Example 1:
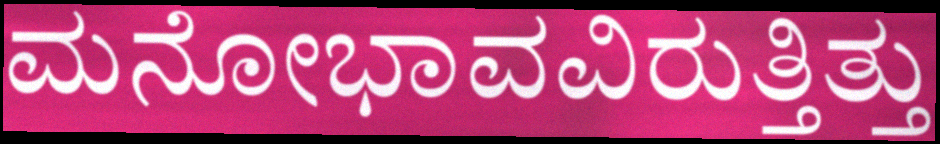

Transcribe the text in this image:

ಮನೋಭಾವವಿರುತ್ತಿತ್ತು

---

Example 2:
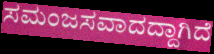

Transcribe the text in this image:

ಸಮಂಜಸವಾದದ್ದಾಗಿದೆ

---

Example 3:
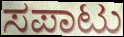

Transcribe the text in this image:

ಸಪಾಟು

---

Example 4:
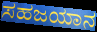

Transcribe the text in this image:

ಸಹಜಯಾನ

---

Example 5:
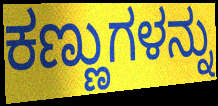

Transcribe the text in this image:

ಕಣ್ಣುಗಳನ್ನು